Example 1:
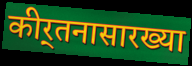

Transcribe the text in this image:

कीर्तनासारख्या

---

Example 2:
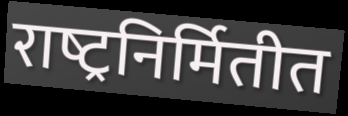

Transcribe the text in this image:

राष्ट्रनिर्मितीत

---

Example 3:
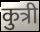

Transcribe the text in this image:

कुत्री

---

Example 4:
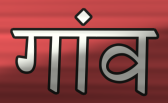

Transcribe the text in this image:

गांव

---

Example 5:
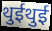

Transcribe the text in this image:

थुईथुई